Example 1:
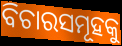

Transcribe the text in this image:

ବିଚାରସମୂହକୁ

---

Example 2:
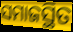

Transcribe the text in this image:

ସମାଜସ୍ଥିତ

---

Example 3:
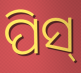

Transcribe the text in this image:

ପିସ୍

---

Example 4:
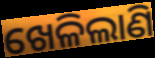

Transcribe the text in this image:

ଖେଳିଲାଣି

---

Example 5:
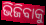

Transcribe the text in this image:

ଭିଜିବାକୁ